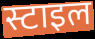
स्टाइल